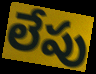
లేపు